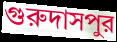
গুরুদাসপুর